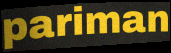
pariman